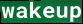
wakeup